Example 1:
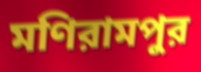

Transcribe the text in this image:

মণিরামপুর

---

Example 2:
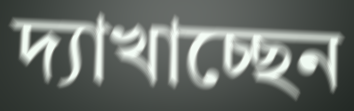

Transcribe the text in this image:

দ্যাখাচ্ছেন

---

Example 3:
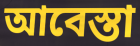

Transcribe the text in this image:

আবেস্তা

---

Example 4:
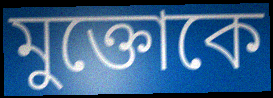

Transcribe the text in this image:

মুক্তোকে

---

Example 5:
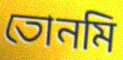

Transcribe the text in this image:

তোনমি